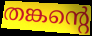
തങ്കന്റെ